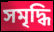
সমৃদ্ধি